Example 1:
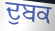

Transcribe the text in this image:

ਦੁਬਕ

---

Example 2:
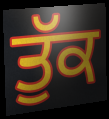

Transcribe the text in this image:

ਤੁੱਕ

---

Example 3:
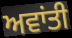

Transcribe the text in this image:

ਅਵਾਂਤੀ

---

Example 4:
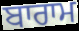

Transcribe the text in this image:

ਬਾਰਾਮ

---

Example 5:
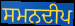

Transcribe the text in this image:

ਸਮਨਦੀਪ